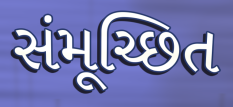
સંમૂચ્છિત